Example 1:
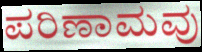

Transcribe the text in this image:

ಪರಿಣಾಮವು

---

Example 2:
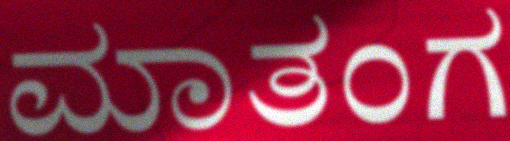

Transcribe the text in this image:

ಮಾತಂಗ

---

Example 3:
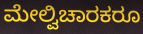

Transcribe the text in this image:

ಮೇಲ್ವಿಚಾರಕರೂ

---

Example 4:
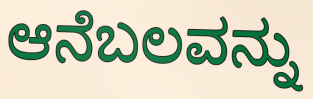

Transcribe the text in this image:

ಆನೆಬಲವನ್ನು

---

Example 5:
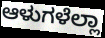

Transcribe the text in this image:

ಆಳುಗಳೆಲ್ಲಾ